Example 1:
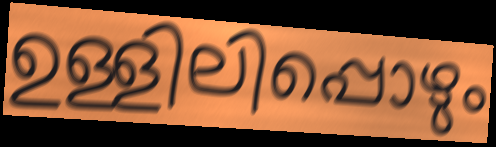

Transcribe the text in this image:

ഉള്ളിലിപ്പൊഴും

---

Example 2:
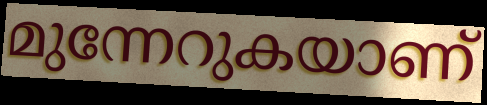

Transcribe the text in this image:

മുന്നേറുകയാണ്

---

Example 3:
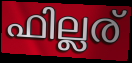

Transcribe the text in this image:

ഫില്ലര്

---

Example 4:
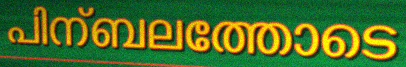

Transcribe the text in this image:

പിന്ബലത്തോടെ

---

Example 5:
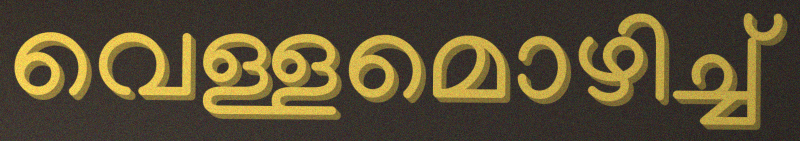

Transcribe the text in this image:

വെള്ളമൊഴിച്ച്